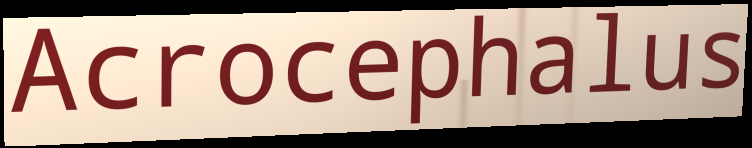
Acrocephalus